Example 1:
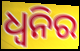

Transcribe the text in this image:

ଧ୍ବନିର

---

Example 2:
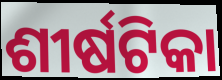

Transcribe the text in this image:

ଶୀର୍ଷଟିକା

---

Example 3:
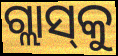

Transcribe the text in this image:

ଗ୍ଲାସ୍‌କୁ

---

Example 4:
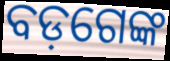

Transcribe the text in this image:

ବଡ଼ଗେଙ୍କ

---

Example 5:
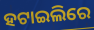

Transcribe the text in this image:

ହଟାଇଲିରେ